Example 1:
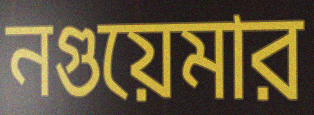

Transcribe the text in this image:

নগুয়েমার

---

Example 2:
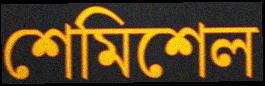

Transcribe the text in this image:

শেমিশেল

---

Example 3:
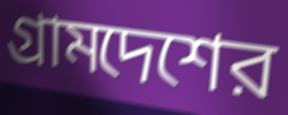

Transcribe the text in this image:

গ্রামদেশের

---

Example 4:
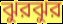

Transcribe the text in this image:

ঝুরঝুর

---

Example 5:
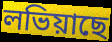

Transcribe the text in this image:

লভিয়াছে